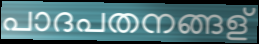
പാദപതനങ്ങള്